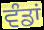
ਵੰਡਾਂ